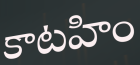
కాటహిం